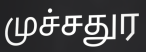
முச்சதுர